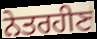
ਨੇਤਰਹੀਣ